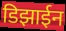
डिझाईन